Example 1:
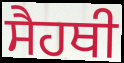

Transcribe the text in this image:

ਸੈਹਥੀ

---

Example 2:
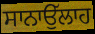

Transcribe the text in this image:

ਸਾਨਾਉੱਲਾਹ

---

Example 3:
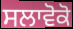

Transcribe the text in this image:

ਸਲਾਵੋਕੋ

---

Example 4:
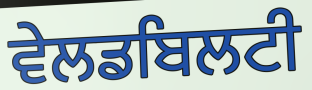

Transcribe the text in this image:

ਵੇਲਡਬਿਲਟੀ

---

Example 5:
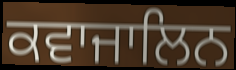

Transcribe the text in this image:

ਕਵਾਜਾਲਿਨ